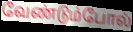
வேண்டும்போல்